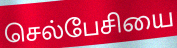
செல்பேசியை